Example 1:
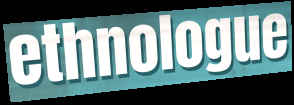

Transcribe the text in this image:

ethnologue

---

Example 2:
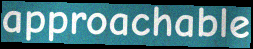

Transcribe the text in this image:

approachable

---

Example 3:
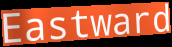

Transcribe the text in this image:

Eastward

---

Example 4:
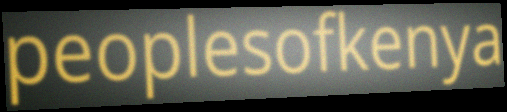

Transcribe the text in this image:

peoplesofkenya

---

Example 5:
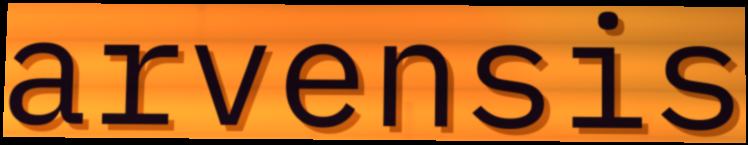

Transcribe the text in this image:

arvensis